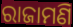
ରାଜାମଣି